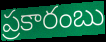
ప్రకారంబు